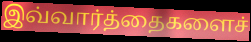
இவ்வார்த்தைகளைச்